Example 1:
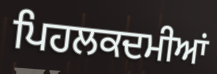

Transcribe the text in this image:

ਪਿਹਲਕਦਮੀਆਂ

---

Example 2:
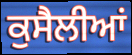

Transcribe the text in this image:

ਕੁਸੈਲੀਆਂ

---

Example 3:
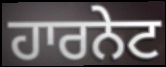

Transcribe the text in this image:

ਹਾਰਨੇਟ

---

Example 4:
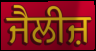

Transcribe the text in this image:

ਜੈਲੀਜ਼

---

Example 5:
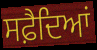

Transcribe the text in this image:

ਸਫ਼ੈਦਿਆਂ